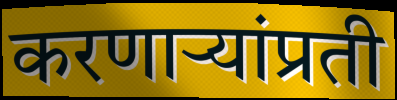
करणाऱ्यांप्रती